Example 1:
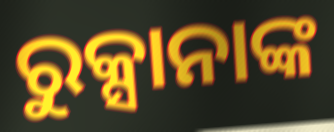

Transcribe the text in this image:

ରୁକ୍ସାନାଙ୍କ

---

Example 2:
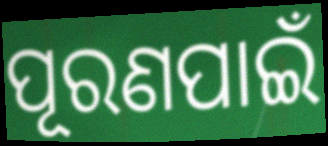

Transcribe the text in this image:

ପୂରଣପାଇଁ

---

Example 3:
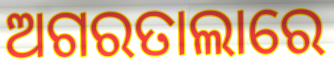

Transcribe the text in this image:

ଅଗରତାଲାରେ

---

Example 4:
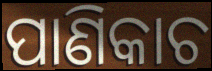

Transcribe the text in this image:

ପାଣିକାଚ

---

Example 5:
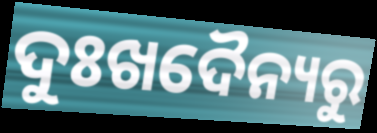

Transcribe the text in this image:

ଦୁଃଖଦୈନ୍ୟରୁ